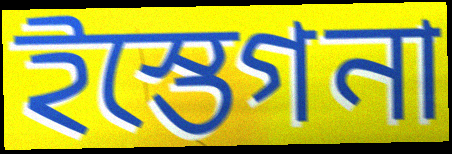
ইস্তেগনা